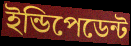
ইন্ডিপেডেন্ট